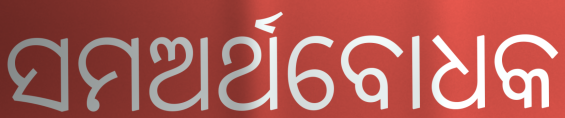
ସମଅର୍ଥବୋଧକ